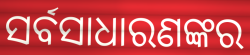
ସର୍ବସାଧାରଣଙ୍କର